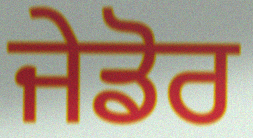
ਜੇਡੋਰ